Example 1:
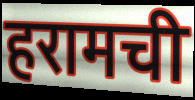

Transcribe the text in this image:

हरामची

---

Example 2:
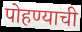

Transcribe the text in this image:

पोहण्याची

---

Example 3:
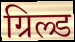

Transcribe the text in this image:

ग्रिल्ड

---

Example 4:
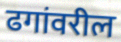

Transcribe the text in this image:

ढगांवरील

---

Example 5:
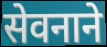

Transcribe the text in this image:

सेवनाने